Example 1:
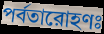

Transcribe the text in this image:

পর্বতারোহণঃ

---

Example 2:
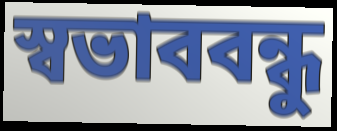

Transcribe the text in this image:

স্বভাববন্ধু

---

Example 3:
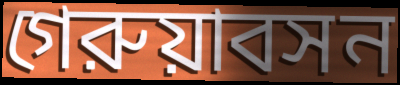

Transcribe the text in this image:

গেরুয়াবসন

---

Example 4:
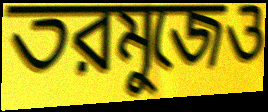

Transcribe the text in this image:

তরমুজেও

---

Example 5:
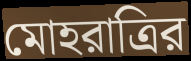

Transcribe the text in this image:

মোহরাত্রির